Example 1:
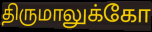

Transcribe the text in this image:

திருமாலுக்கோ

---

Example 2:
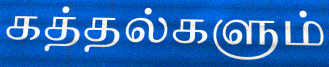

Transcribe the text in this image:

கத்தல்களும்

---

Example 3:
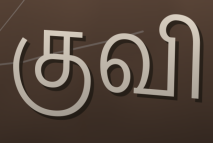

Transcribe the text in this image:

குவி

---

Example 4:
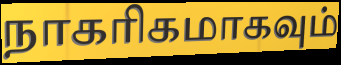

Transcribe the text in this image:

நாகரிகமாகவும்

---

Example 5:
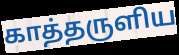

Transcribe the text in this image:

காத்தருளிய